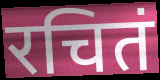
रचितं